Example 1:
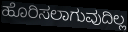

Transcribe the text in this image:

ಹೊರಿಸಲಾಗುವುದಿಲ್ಲ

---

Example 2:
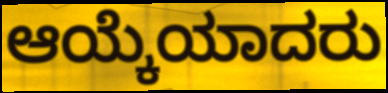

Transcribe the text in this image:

ಆಯ್ಕೆಯಾದರು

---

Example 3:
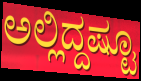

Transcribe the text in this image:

ಅಲ್ಲಿದ್ದಷ್ಟೂ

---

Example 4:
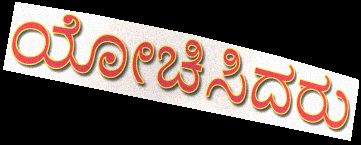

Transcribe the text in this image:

ಯೋಚಿಸಿದರು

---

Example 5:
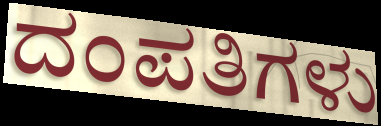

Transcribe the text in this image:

ದಂಪತಿಗಳು